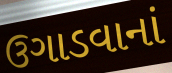
ઉગાડવાનાં